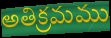
అతిక్రమము